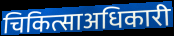
चिकित्साअधिकारी